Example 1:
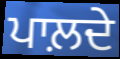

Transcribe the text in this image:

ਪਾਲ਼ਦੇ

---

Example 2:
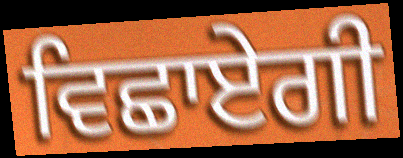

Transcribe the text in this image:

ਵਿਛਾਏਗੀ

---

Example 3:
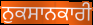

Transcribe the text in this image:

ਨੁਕਸਾਨਕਾਰੀ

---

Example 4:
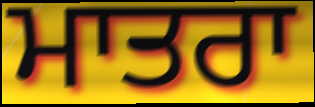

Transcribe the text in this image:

ਮਾਤਰਾ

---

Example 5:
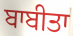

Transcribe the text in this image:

ਬਾਬੀਤਾ